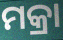
ମକ୍ରା